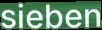
sieben